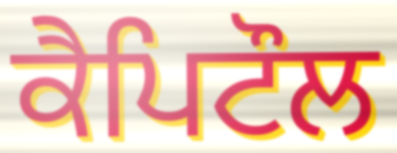
ਕੈਪਿਟੌਲ